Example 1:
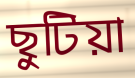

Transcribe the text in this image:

ছুটিয়া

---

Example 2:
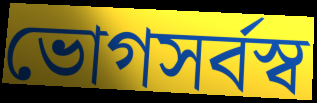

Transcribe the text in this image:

ভোগসর্বস্ব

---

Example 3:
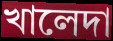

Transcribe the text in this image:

খালেদা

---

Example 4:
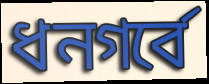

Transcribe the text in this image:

ধনগর্বে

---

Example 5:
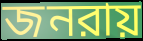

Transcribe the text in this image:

জনরায়